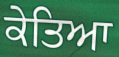
ਕੇਤਿਆ